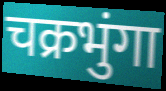
चक्रभुंगा